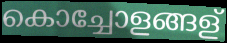
കൊച്ചോളങ്ങള്